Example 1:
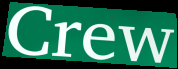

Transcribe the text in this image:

Crew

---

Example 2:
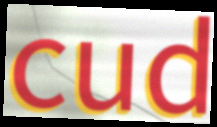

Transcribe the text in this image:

cud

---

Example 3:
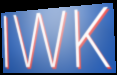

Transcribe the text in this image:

IWK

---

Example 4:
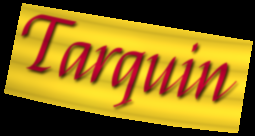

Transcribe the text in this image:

Tarquin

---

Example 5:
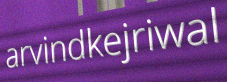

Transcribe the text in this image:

arvindkejriwal